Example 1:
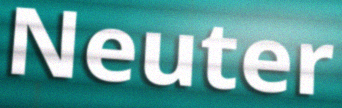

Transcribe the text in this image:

Neuter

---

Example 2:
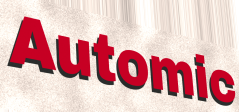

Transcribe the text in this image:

Automic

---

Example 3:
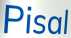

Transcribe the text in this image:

Pisal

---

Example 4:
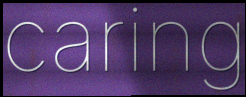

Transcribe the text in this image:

caring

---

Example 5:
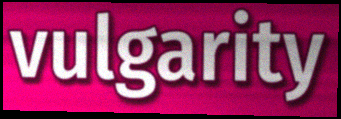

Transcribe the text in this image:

vulgarity